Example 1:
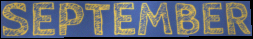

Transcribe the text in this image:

SEPTEMBER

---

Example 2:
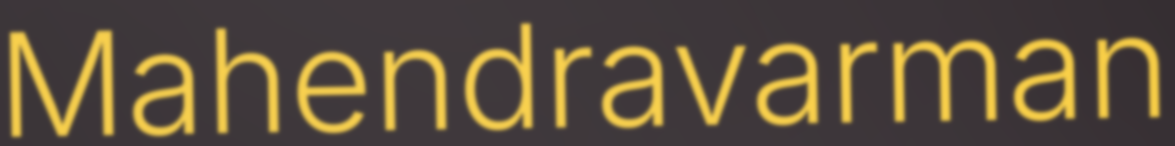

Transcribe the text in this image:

Mahendravarman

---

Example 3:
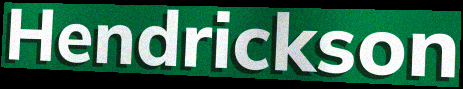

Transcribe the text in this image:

Hendrickson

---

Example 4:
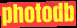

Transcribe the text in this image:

photodb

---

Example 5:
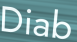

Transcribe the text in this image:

Diab